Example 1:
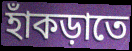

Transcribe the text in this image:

হাঁকড়াতে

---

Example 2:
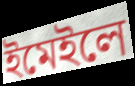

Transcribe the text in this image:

ইমেইলে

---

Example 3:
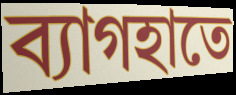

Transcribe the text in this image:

ব্যাগহাতে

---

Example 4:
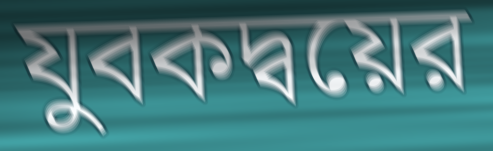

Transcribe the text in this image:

যুবকদ্বয়ের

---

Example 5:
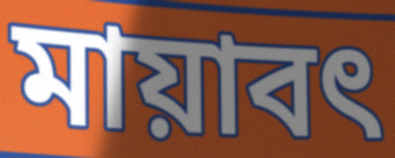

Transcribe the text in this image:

মায়াবৎ